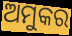
ଅମୁକର